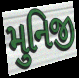
મુનિજી